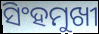
ସିଂହମୁଖୀ